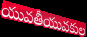
యువతీయువకుల